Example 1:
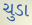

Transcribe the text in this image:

ચુડા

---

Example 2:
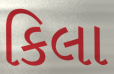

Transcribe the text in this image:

કિલા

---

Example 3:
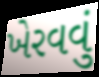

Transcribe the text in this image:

ખેરવવું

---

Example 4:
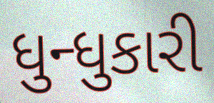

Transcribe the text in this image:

ધુન્ધુકારી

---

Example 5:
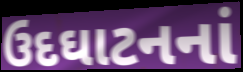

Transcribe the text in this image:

ઉદઘાટનનાં